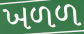
ખળળ